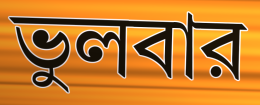
ভুলবার